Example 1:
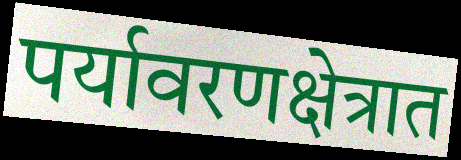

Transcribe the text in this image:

पर्यावरणक्षेत्रात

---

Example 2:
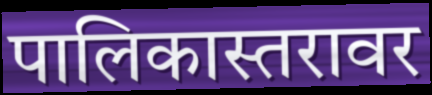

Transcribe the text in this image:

पालिकास्तरावर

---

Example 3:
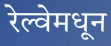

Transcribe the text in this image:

रेल्वेमधून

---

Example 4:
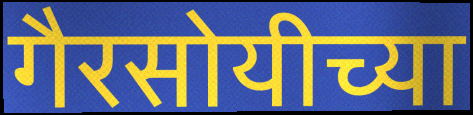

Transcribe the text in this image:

गैरसोयीच्या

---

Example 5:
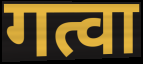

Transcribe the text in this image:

गत्वा